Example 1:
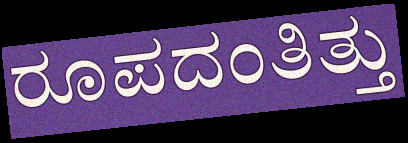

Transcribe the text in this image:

ರೂಪದಂತಿತ್ತು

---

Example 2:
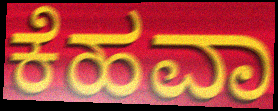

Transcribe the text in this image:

ಕೆಹವಾ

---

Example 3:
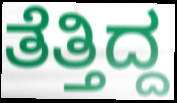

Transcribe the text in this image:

ತೆತ್ತಿದ್ದ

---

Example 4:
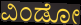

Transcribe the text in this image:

ವಿಂಡೋ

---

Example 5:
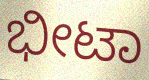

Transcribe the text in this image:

ಭೀಟಾ